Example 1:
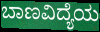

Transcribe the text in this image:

ಬಾಣವಿದ್ಯೆಯ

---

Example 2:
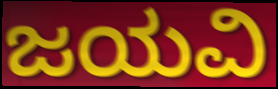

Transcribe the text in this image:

ಜಯವಿ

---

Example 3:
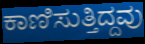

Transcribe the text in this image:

ಕಾಣಿಸುತ್ತಿದ್ದವು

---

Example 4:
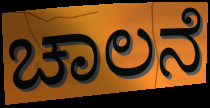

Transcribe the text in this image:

ಚಾಲನೆ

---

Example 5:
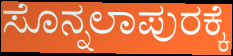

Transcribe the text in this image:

ಸೊನ್ನಲಾಪುರಕ್ಕೆ